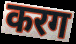
करग